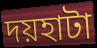
দয়হাটা